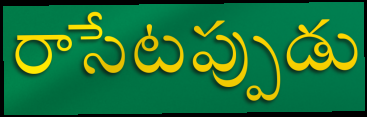
రాసేటప్పుడు